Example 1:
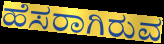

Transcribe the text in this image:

ಹೆಸರಾಗಿರುವ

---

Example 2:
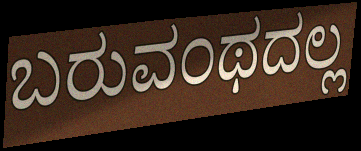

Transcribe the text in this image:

ಬರುವಂಥದಲ್ಲ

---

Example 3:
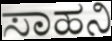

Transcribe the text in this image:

ಸಾಹನಿ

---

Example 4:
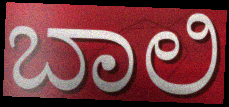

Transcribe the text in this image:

ಬಾಲಿ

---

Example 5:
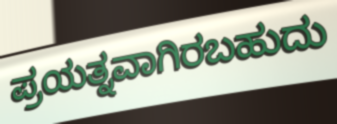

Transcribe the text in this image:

ಪ್ರಯತ್ನವಾಗಿರಬಹುದು